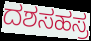
ದಶಸಹಸ್ರ